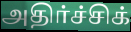
அதிர்ச்சிக்